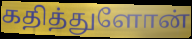
கதித்துளோன்